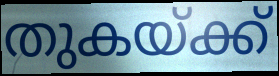
തുകയ്ക്ക്